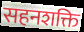
सहनशक्ति